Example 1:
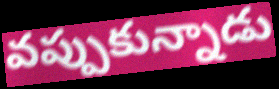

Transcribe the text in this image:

వప్పుకున్నాడు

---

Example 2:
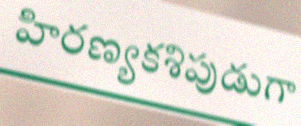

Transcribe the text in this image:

హిరణ్యకశిపుడుగా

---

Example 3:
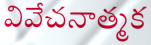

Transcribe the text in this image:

వివేచనాత్మక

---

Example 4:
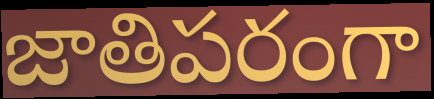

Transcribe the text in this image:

జాతిపరంగా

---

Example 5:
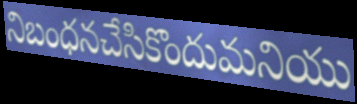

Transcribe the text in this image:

నిబంధనచేసికొందుమనియు